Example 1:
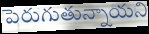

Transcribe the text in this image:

పెరుగుతున్నాయని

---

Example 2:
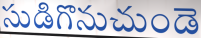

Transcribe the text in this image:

సుడిగొనుచుండె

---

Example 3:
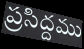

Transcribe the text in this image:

ప్రసిద్దము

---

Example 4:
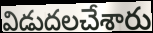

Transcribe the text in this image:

విడుదలచేశారు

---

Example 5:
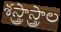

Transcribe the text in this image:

శస్త్రాస్త్రాల